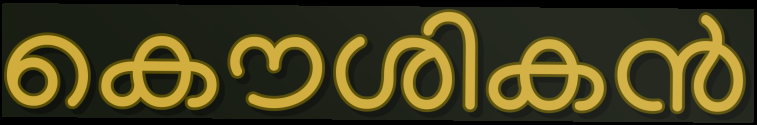
കൌശികൻ